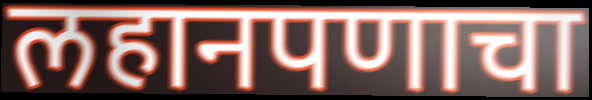
लहानपणाचा